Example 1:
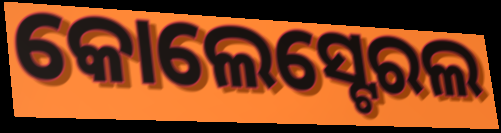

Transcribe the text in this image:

କୋଲେସ୍ଟେରଲ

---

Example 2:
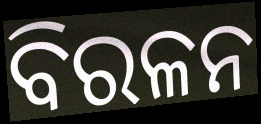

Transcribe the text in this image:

ବିରଳନ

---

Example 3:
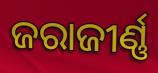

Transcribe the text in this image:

ଜରାଜୀର୍ଣ୍ଣ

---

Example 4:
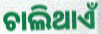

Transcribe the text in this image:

ଚାଲିଥାଏଁ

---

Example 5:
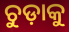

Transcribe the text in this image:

ଚୁଡ଼ାକୁ